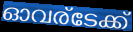
ഓവര്ടേക്ക്